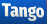
Tango